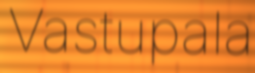
Vastupala